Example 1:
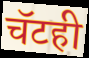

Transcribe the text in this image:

चॅटही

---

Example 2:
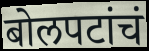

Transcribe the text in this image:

बोलपटांचं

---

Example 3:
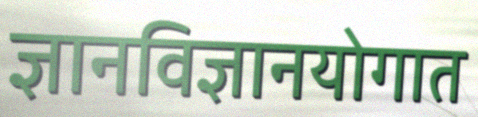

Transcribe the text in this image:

ज्ञानविज्ञानयोगात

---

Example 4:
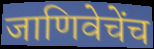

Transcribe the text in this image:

जाणिवेचेंच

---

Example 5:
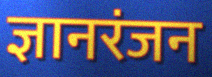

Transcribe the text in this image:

ज्ञानरंजन